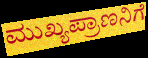
ಮುಖ್ಯಪ್ರಾಣನಿಗೆ